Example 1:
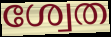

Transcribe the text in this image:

ശ്വേത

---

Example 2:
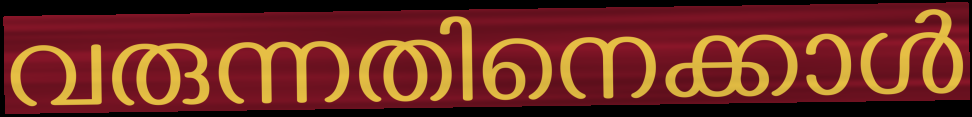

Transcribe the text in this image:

വരുന്നതിനെക്കാൾ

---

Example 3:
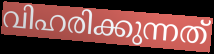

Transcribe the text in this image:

വിഹരിക്കുന്നത്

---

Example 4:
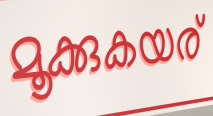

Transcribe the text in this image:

മൂക്കുകയര്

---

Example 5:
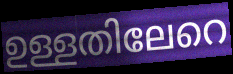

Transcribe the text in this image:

ഉള്ളതിലേറെ